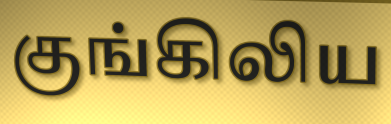
குங்கிலிய